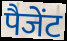
पैजेंट